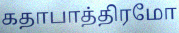
கதாபாத்திரமோ